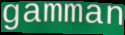
gamman